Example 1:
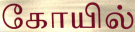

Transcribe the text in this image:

கோயில்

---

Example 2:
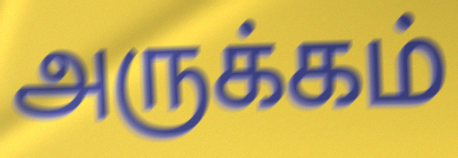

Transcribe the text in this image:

அருக்கம்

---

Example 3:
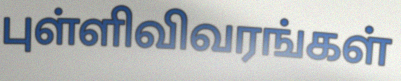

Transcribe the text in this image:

புள்ளிவிவரங்கள்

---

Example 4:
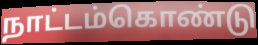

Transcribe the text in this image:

நாட்டம்கொண்டு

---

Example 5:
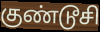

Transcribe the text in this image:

குண்டூசி